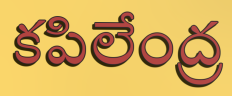
కపిలేంద్ర